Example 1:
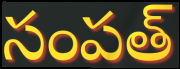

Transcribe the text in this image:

సంపత్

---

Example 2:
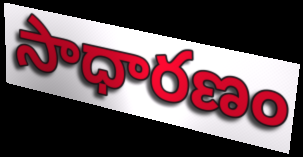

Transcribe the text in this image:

సాధారణం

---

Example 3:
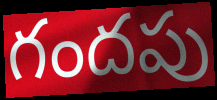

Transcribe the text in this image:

గందపు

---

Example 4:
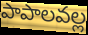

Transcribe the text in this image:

పాపాలవల్ల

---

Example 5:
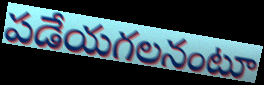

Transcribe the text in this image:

పడేయగలనంటూ